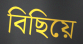
বিছিয়ে